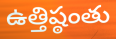
ఉత్తిష్ఠంతు